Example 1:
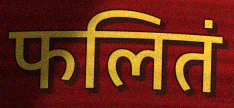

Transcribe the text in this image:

फलितं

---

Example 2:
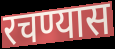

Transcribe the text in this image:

रचण्यास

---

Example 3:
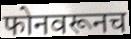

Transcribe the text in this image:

फोनवरूनच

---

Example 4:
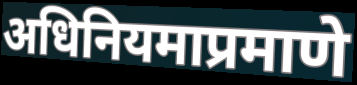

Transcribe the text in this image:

अधिनियमाप्रमाणे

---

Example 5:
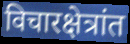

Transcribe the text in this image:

विचारक्षेत्रांत